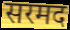
सरमद